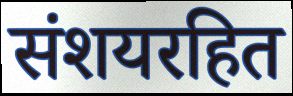
संशयरहित